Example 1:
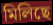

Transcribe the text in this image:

মিলিছে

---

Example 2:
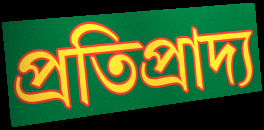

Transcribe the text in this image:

প্ৰতিপ্ৰাদ্য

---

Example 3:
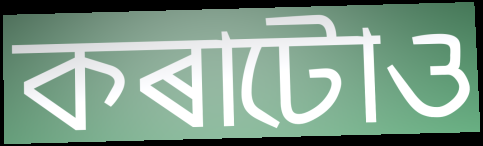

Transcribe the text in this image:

কৰাটোও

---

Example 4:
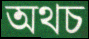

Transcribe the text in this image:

অথচ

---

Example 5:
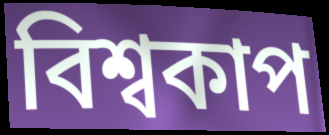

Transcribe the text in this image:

বিশ্বকাপ